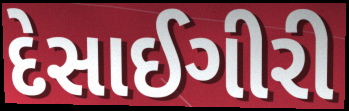
દેસાઈગીરી